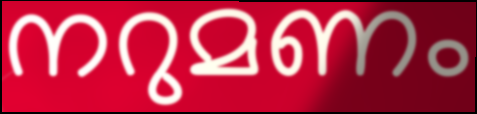
നറുമണം